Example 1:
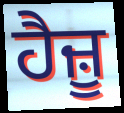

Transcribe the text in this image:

ਹੈਜ਼ੂ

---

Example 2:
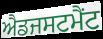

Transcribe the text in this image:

ਐਡਜਸਟਮੈਂਟ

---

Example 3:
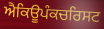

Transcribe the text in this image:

ਐਕਿਊਪੰਕਚਰਿਸਟ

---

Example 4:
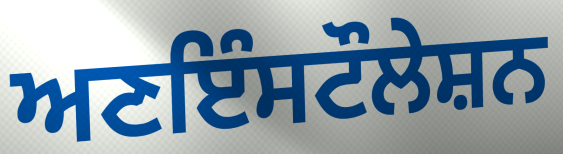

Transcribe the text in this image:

ਅਣਇੰਸਟੌਲੇਸ਼ਨ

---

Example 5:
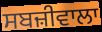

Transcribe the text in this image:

ਸਬਜ਼ੀਵਾਲਾ